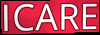
ICARE